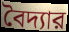
বৈদ্যার